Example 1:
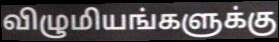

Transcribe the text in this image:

விழுமியங்களுக்கு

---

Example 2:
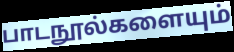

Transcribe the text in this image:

பாடநூல்களையும்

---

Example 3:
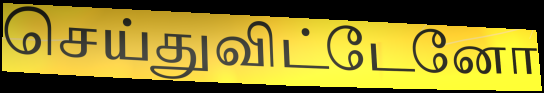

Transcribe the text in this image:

செய்துவிட்டேனோ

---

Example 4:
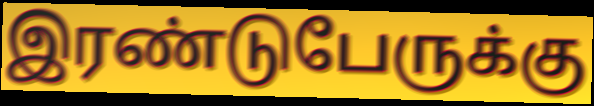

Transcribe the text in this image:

இரண்டுபேருக்கு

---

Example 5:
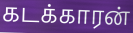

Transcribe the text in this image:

கடக்காரன்